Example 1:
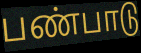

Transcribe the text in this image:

பண்பாடு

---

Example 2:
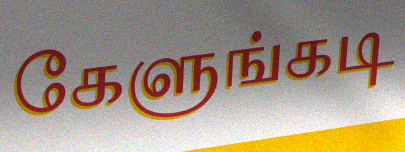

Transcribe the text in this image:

கேளுங்கடி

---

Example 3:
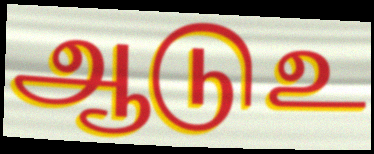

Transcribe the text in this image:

ஆடுஉ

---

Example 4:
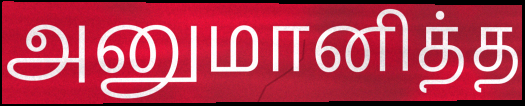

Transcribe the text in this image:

அனுமானித்த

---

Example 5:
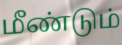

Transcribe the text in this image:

மீண்டும்